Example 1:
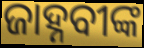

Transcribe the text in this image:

ଜାହ୍ନବୀଙ୍କ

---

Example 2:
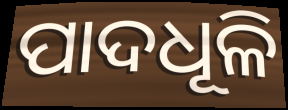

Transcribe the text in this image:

ପାଦଧୂଳି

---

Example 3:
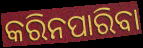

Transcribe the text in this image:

କରିନପାରିବା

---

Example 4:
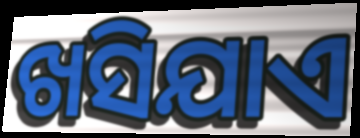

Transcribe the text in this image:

ଖସିଯାଏ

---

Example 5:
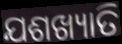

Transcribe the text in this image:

ଯଶଖ୍ୟାତି